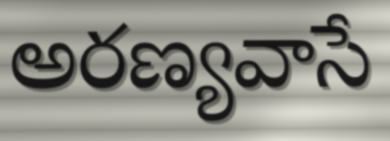
అరణ్యవాసే